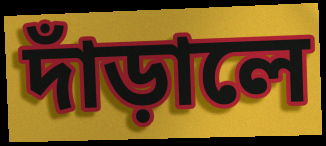
দাঁড়ালে